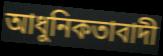
আধুনিকতাবাদী